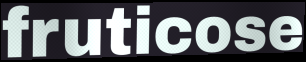
fruticose